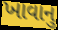
ખાવાનુ